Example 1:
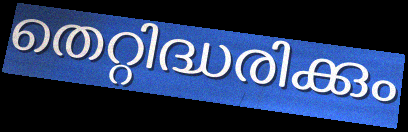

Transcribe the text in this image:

തെറ്റിദ്ധരിക്കും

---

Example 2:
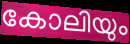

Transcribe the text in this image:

കോലിയും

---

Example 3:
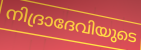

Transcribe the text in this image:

നിദ്രാദേവിയുടെ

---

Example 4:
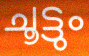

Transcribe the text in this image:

ചൂട്ടും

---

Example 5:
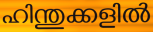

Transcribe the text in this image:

ഹിന്തുക്കളിൽ